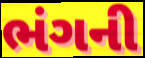
ભંગની